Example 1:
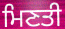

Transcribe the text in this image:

ਮਿਣਤੀ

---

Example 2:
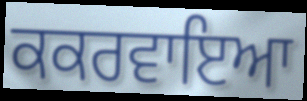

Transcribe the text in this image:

ਕਕਰਵਾਇਆ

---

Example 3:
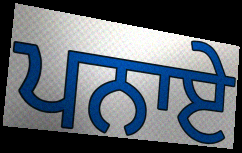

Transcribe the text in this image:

ਪਨਾਏ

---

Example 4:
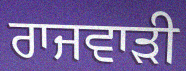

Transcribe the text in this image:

ਰਾਜਵਾੜੀ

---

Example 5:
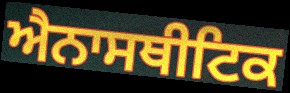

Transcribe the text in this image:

ਐਨਾਸਥੀਟਿਕ